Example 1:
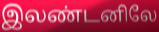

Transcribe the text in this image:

இலண்டனிலே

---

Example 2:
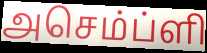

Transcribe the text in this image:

அசெம்ப்ளி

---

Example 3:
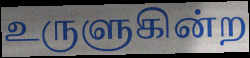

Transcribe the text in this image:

உருளுகின்ற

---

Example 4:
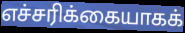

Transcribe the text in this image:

எச்சரிக்கையாகக்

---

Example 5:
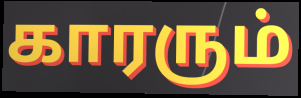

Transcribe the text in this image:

காரரும்